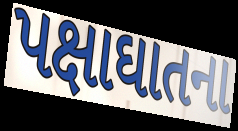
પક્ષાઘાતના